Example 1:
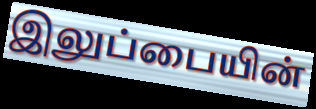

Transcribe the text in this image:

இலுப்பையின்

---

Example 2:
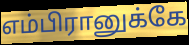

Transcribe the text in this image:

எம்பிரானுக்கே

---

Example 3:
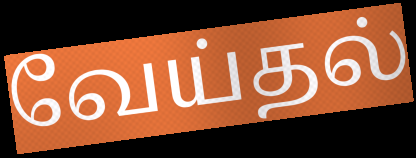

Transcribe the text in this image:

வேய்தல்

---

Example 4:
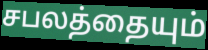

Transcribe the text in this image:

சபலத்தையும்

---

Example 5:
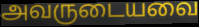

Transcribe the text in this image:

அவருடையவை